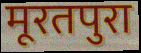
मूरतपुरा